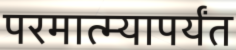
परमात्म्यापर्यंत